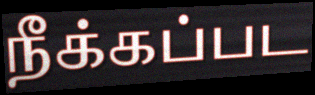
நீக்கப்பட